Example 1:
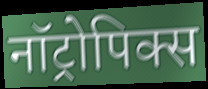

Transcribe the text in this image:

नॉट्रोपिक्स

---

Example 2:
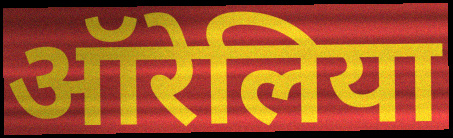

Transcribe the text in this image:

ऑरेलिया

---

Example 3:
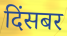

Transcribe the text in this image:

दिंसबर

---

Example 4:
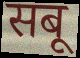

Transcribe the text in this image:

सबू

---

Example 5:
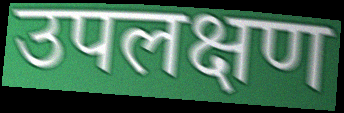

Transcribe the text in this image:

उपलक्षण